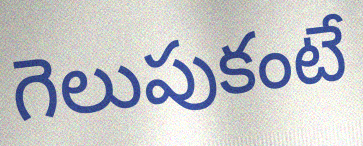
గెలుపుకంటే